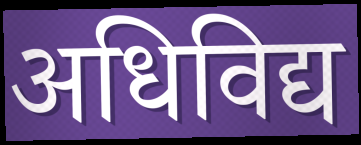
अधिविद्य